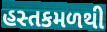
હસ્તકમળથી